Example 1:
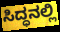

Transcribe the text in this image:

ಸಿದ್ಧನಲ್ಲಿ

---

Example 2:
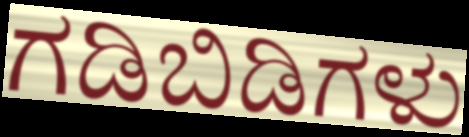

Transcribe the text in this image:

ಗಡಿಬಿಡಿಗಳು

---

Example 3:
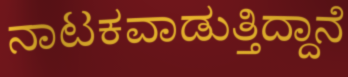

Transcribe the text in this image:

ನಾಟಕವಾಡುತ್ತಿದ್ದಾನೆ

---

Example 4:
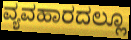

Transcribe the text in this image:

ವ್ಯವಹಾರದಲ್ಲೂ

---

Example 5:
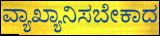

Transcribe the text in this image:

ವ್ಯಾಖ್ಯಾನಿಸಬೇಕಾದ